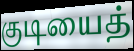
குடியைத்